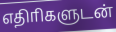
எதிரிகளுடன்